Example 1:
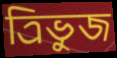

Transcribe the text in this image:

ত্ৰিভুজ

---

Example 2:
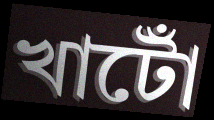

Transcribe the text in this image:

খাটোঁ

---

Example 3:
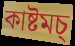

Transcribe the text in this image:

কাষ্টমচ্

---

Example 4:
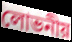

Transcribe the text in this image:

লোভনীয়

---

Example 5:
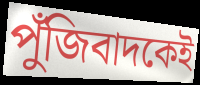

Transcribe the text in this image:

পুঁজিবাদকেই